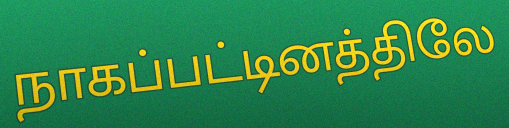
நாகப்பட்டினத்திலே